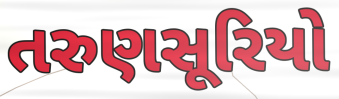
તરુણસૂરિયો